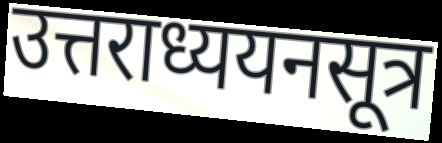
उत्तराध्ययनसूत्र